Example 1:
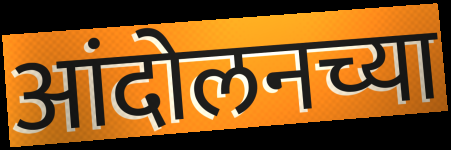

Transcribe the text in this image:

आंदोलनच्या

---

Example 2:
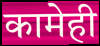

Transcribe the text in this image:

कामेही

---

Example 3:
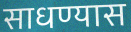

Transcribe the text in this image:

साधण्यास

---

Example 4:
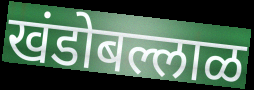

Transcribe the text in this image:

खंडोबल्लाळ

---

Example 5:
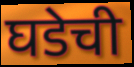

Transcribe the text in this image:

घडेची